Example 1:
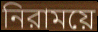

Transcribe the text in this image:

নিরাময়ে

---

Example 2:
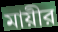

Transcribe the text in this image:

মায়ীর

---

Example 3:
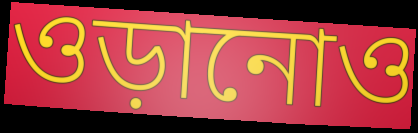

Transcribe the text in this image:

ওড়ানোও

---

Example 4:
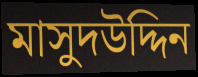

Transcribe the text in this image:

মাসুদউদ্দিন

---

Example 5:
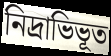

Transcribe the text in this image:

নিদ্রাভিভূত